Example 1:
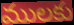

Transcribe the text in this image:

ములకు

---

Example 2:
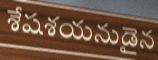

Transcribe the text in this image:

శేషశయనుడైన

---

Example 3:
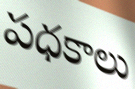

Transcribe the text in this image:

పధకాలు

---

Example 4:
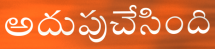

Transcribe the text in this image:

అదుపుచేసింది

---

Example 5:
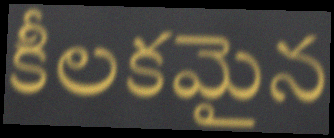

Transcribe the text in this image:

కీలకమైన